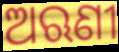
ଅଋଣୀ